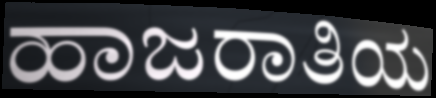
ಹಾಜರಾತಿಯ